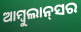
ଆମ୍ବୁଲାନ୍‌ସର